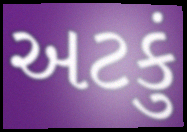
અટકું